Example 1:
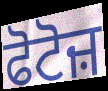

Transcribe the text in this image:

ਫੋਟੋਜ਼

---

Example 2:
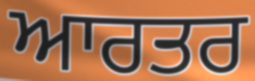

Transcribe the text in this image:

ਆਰਤਰ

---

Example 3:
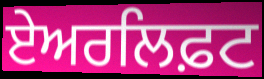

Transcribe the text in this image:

ਏਅਰਲਿਫ਼ਟ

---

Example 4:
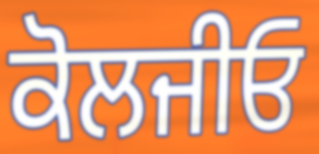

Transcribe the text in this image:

ਕੋਲਜੀਓ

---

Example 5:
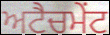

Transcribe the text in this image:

ਅਟੈਚਮੇਂਟ